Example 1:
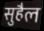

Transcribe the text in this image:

सुहैल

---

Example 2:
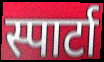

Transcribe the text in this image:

स्पार्टा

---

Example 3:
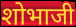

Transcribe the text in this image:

शोभाजी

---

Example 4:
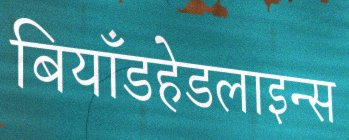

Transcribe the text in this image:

बियॉंडहेडलाइन्स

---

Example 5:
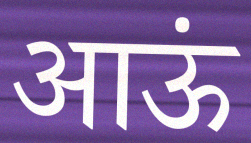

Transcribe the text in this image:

आऊं